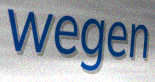
wegen